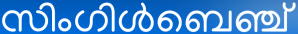
സിംഗിൾബെഞ്ച്